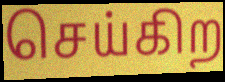
செய்கிற